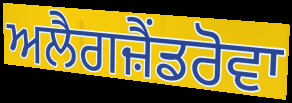
ਅਲੈਗਜ਼ੈਂਡਰੋਵਾ